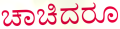
ಚಾಚಿದರೂ